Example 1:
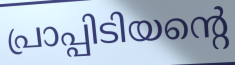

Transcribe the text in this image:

പ്രാപ്പിടിയന്റെ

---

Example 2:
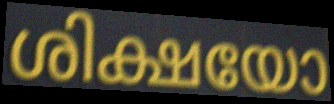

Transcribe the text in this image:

ശിക്ഷയോ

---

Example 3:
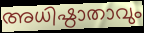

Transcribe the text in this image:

അധിഷ്ഠാതാവും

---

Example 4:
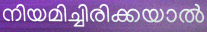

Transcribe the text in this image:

നിയമിച്ചിരിക്കയാൽ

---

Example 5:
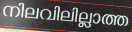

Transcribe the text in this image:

നിലവിലില്ലാത്ത